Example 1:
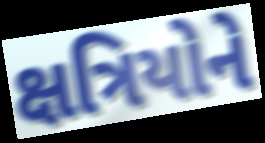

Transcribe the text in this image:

ક્ષત્રિયોને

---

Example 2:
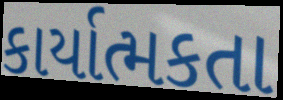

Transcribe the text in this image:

કાર્યાત્મકતા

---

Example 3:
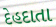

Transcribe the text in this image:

દેહદાતા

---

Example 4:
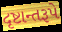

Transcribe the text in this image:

દૃષ્ટાન્તરૂપે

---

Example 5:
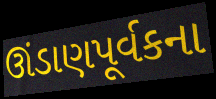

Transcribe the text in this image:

ઊંડાણપૂર્વકના